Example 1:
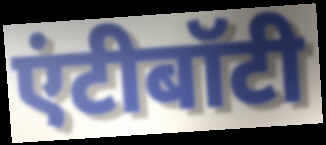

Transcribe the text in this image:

एंटीबॉटी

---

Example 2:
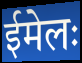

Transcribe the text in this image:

ईमेलः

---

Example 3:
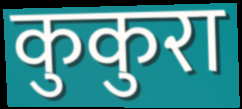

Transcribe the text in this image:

कुकुरा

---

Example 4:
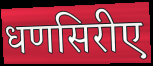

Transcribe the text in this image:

धणसिरीए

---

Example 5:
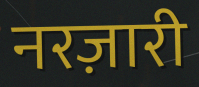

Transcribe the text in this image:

नरज़ारी